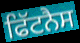
ਫਿੱਟਨੈਸ